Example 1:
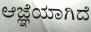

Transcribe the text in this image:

ಆಜ್ಞೆಯಾಗಿದೆ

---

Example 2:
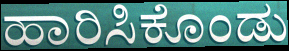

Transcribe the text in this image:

ಹಾರಿಸಿಕೊಂಡು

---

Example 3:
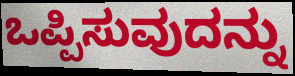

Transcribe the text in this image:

ಒಪ್ಪಿಸುವುದನ್ನು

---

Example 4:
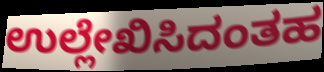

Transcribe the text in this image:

ಉಲ್ಲೇಖಿಸಿದಂತಹ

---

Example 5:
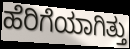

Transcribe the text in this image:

ಹೆರಿಗೆಯಾಗಿತ್ತು